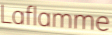
Laflamme